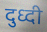
दुध्दी